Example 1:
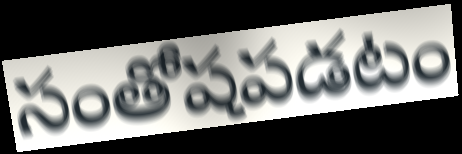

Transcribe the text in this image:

సంతోషపడటం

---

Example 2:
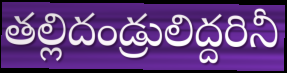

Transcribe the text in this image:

తల్లిదండ్రులిద్దరినీ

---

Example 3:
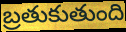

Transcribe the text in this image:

బ్రతుకుతుంది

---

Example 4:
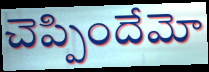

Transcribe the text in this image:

చెప్పిందేమో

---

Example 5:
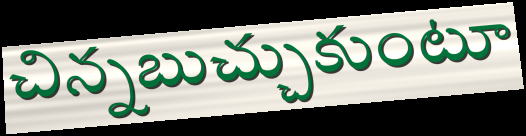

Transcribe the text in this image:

చిన్నబుచ్చుకుంటూ